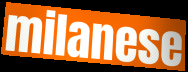
milanese